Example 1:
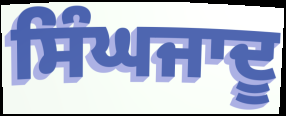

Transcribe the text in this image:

ਸਿੰਘਜਾਦੂ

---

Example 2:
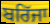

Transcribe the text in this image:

ਬਰਿੱਜਾ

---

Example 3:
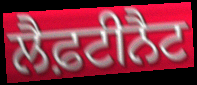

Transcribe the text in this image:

ਲੈਫ਼ਟੀਨੈਟ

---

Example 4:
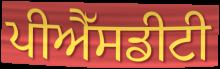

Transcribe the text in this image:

ਪੀਐੱਸਡੀਟੀ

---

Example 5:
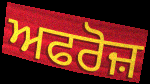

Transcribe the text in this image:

ਅਫਰੋਜ਼